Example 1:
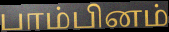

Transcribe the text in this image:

பாம்பினம்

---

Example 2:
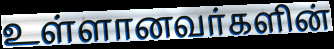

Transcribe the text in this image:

உள்ளானவர்களின்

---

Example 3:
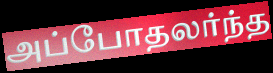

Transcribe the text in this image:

அப்போதலர்ந்த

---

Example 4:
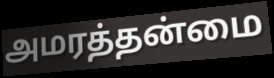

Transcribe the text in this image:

அமரத்தன்மை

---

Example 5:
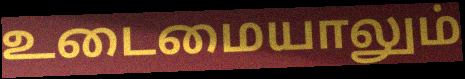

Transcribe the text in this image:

உடைமையாலும்